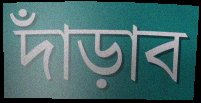
দাঁড়াব